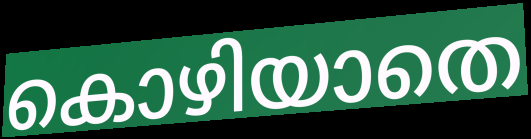
കൊഴിയാതെ